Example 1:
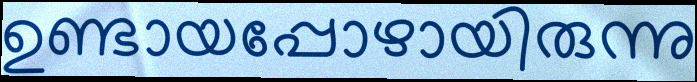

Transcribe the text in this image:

ഉണ്ടായപ്പോഴായിരുന്നു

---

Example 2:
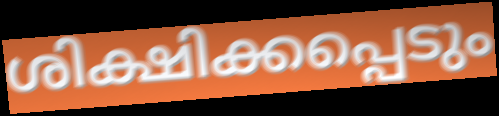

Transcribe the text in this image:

ശിക്ഷിക്കപ്പെടും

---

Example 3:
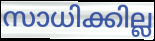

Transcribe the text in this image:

സാധിക്കില്ല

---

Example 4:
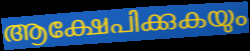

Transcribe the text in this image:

ആക്ഷേപിക്കുകയും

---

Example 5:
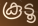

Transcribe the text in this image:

കൂടൂ